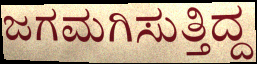
ಜಗಮಗಿಸುತ್ತಿದ್ದ